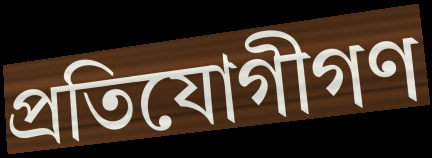
প্রতিযোগীগণ